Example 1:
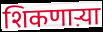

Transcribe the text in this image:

शिकणाऱ्‍या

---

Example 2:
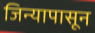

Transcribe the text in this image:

जिन्यापासून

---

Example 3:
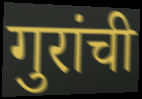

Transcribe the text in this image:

गुरांची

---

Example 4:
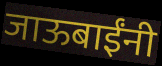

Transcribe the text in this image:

जाऊबाईंनी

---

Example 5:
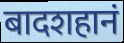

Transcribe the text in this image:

बादशहानं